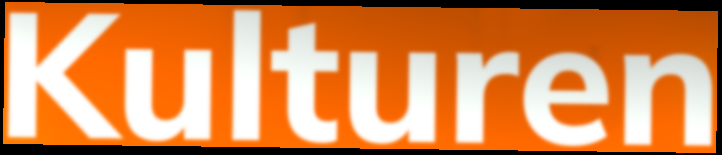
Kulturen